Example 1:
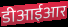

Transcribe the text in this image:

डीआईआर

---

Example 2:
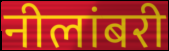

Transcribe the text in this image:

नीलांबरी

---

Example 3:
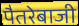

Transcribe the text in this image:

पैतरेबाजी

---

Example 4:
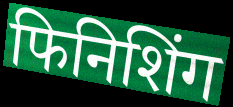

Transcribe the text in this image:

फिनिशिंग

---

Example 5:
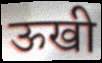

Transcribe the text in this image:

ऊखी